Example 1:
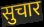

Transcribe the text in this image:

सुचार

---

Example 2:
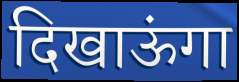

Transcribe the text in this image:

दिखाऊंगा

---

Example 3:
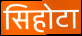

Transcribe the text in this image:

सिहोटा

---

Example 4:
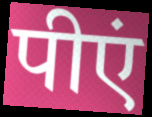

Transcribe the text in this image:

पीएं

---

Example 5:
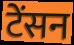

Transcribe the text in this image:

टेंसन